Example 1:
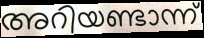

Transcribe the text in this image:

അറിയണ്ടാന്ന്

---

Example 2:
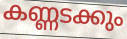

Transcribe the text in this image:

കണ്ണടക്കും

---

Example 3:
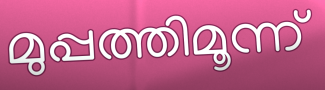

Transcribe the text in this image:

മുപ്പത്തിമൂന്ന്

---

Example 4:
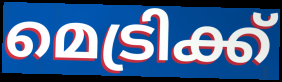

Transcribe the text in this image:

മെട്രിക്ക്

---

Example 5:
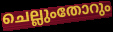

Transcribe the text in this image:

ചെല്ലുംതോറും